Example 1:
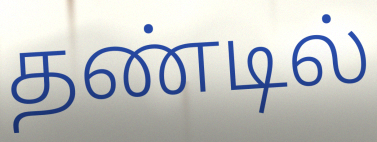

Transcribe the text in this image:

தண்டில்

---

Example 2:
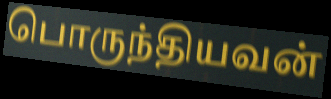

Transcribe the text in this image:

பொருந்தியவன்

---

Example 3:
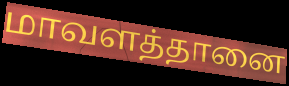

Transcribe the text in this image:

மாவளத்தானை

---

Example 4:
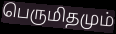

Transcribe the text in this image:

பெருமிதமும்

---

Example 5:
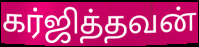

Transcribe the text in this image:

கர்ஜித்தவன்